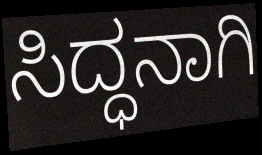
ಸಿದ್ಧನಾಗಿ